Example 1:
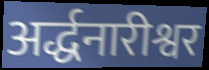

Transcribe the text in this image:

अर्द्धनारीश्वर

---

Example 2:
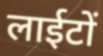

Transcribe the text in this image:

लाईटों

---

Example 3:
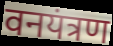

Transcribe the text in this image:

वनयंत्रण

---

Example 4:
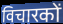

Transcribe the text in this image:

विचारकों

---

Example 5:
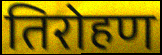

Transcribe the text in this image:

तिरोहण